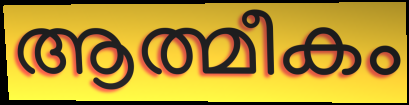
ആത്മീകം